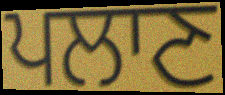
ਪਲਾਣ